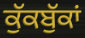
ਕੁੱਕਬੁੱਕਾਂ